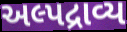
અલ્પદ્રાવ્ય